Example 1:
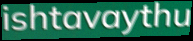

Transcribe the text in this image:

ishtavaythu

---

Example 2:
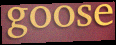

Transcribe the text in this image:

goose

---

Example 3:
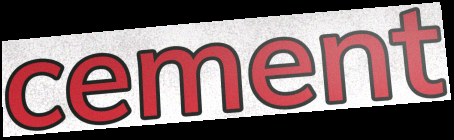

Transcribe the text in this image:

cement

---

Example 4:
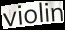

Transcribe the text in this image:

violin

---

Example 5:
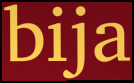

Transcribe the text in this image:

bija